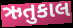
ઋતુકાલ